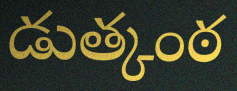
డుత్కంఠ